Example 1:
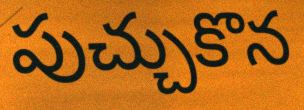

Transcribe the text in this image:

పుచ్చుకొన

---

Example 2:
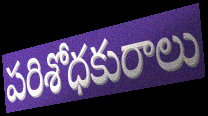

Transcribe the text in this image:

పరిశోధకురాలు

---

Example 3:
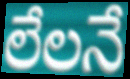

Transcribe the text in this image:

లేలనే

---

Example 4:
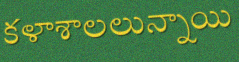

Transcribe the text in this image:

కళాశాలలున్నాయి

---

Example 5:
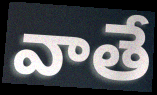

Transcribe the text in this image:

వాతే